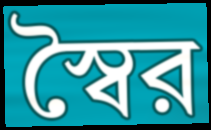
স্বৈর